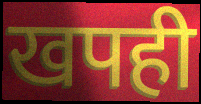
खपही